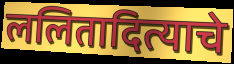
ललितादित्याचे